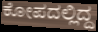
ಕೋಪದಲ್ಲಿದ್ದ